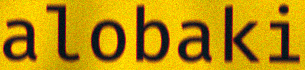
alobaki